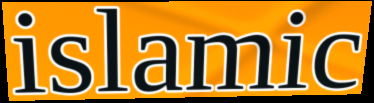
islamic